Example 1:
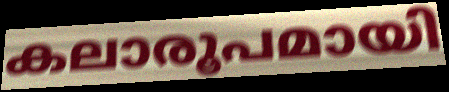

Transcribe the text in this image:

കലാരൂപമായി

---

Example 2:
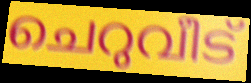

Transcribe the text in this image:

ചെറുവീട്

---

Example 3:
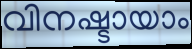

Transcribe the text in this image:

വിനഷ്ടായാം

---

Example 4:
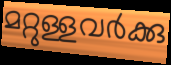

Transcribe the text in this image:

മറ്റുള്ളവർക്കു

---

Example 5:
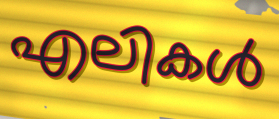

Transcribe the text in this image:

എലികൾ